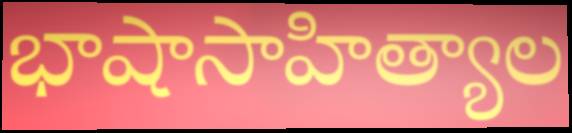
భాషాసాహిత్యాల